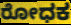
ರೋಧಕ